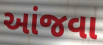
આંજવા